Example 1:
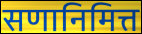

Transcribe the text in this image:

सणानिमित्त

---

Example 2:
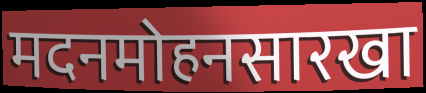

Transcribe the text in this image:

मदनमोहनसारखा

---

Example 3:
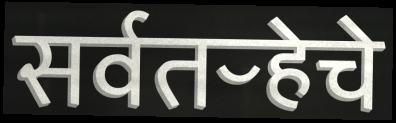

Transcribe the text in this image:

सर्वतऱ्हेचे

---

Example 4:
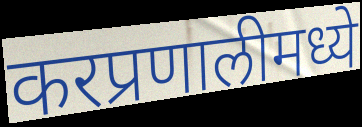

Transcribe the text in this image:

करप्रणालीमध्ये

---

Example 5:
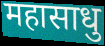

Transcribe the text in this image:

महासाधु